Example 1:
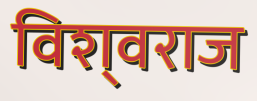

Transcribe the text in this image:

विश्वराज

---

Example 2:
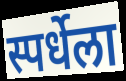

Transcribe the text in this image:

स्पर्धेला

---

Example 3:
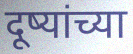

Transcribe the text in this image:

दूष्यांच्या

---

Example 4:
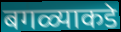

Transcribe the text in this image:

बगळ्याकडे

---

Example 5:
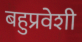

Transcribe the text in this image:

बहुप्रवेशी